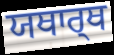
ਯਥਾਰ੍ਥ